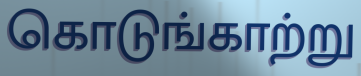
கொடுங்காற்று